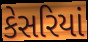
કેસરિયાં